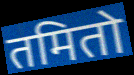
तमितो